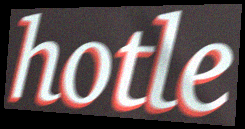
hotle